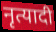
नृत्यादी